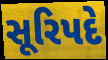
સૂરિપદે